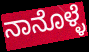
ನಾನೊಳ್ಳೆ